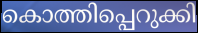
കൊത്തിപ്പെറുക്കി